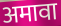
अमावा